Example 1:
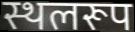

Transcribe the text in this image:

स्थलरूप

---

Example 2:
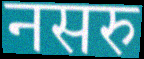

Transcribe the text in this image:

नसरु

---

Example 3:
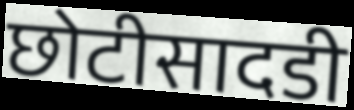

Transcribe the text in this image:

छोटीसादडी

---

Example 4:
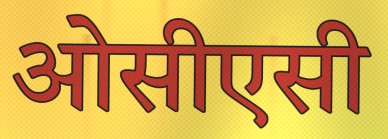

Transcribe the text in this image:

ओसीएसी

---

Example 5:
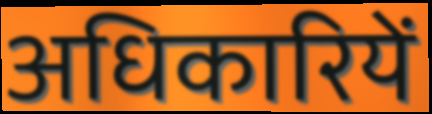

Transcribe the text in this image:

अधिकारियें